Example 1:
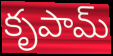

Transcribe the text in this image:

కృపామ్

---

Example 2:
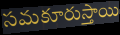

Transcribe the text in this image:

సమకూరుస్తాయి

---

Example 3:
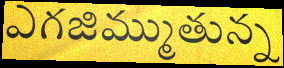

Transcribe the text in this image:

ఎగజిమ్ముతున్న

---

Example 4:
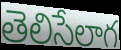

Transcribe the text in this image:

తెలిసేలాగ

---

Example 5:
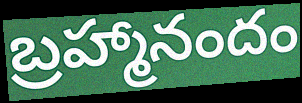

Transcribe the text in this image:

బ్రహ్మానందం